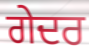
ਗੇਦਰ